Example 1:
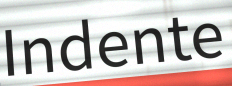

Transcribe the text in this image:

Indente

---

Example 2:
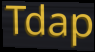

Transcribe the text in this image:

Tdap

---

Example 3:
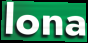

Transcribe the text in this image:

lona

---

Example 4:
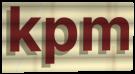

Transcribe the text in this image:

kpm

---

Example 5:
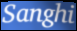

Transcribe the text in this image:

Sanghi